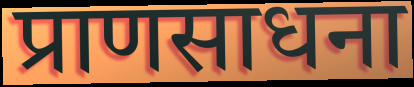
प्राणसाधना